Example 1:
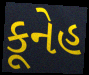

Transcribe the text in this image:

કૂનેહ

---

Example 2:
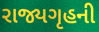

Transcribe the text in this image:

રાજ્યગૃહની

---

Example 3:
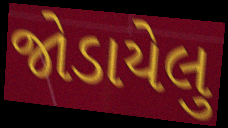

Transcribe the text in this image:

જોડાયેલુ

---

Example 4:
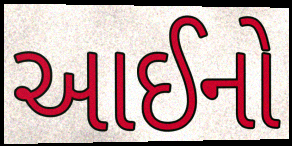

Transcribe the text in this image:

આઈનો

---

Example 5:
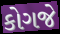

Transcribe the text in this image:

કોગજે